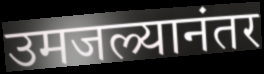
उमजल्यानंतर